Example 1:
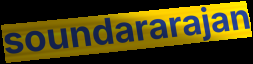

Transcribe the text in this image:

soundararajan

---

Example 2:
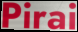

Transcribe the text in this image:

Pirai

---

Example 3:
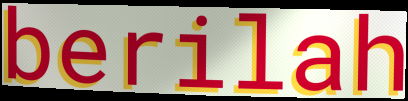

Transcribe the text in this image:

berilah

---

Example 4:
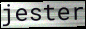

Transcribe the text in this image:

jester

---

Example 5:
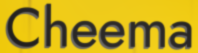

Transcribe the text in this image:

Cheema